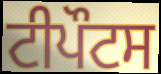
ਟੀਪੌਟਸ